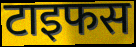
टाइफस